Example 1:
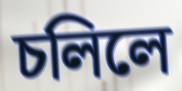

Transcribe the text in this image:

চলিলে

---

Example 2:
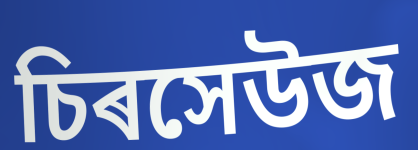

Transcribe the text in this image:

চিৰসেউজ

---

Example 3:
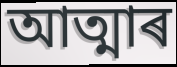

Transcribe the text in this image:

আত্মাৰ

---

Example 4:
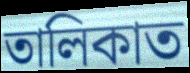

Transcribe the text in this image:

তালিকাত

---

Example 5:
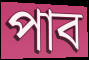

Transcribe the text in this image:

পাব